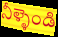
నీళ్ళెండి